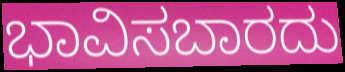
ಭಾವಿಸಬಾರದು